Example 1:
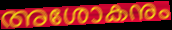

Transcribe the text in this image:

അശോകനും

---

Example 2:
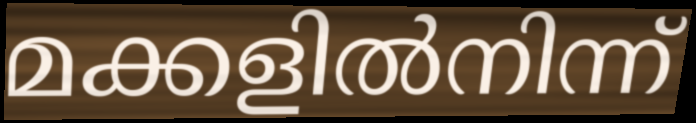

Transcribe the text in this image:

മക്കളിൽനിന്ന്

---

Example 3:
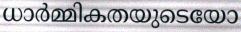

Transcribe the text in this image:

ധാർമ്മികതയുടെയോ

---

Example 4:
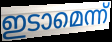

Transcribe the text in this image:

ഇടാമെന്ന്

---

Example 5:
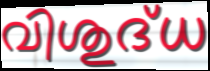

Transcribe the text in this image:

വിശുദ്‌ധ